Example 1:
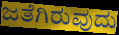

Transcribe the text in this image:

ಜತೆಗಿರುವುದು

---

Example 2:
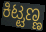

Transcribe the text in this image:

ಕಿಟ್ಟಣ್ಣ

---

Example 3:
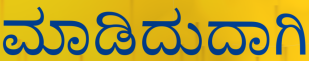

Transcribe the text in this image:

ಮಾಡಿದುದಾಗಿ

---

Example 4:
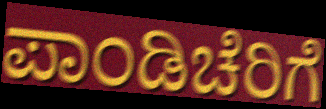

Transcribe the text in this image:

ಪಾಂಡಿಚೆರಿಗೆ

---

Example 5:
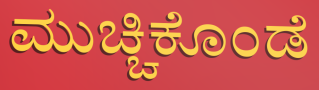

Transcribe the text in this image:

ಮುಚ್ಚಿಕೊಂಡೆ